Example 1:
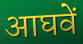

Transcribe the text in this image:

आघवें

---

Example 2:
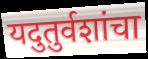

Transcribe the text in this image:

यदुतुर्वशांचा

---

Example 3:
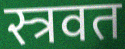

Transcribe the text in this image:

स्त्रवत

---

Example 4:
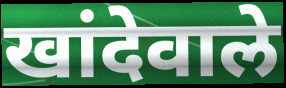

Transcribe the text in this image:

खांदेवाले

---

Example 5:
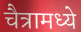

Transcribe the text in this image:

चैत्रामध्ये